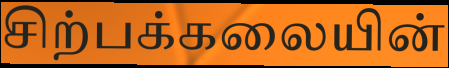
சிற்பக்கலையின்